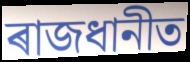
ৰাজধানীত